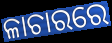
ଳାଚାରରେ